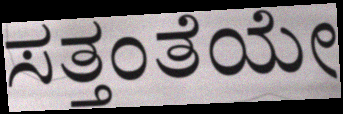
ಸತ್ತಂತೆಯೇ